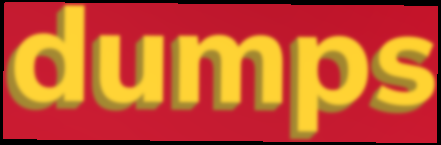
dumps